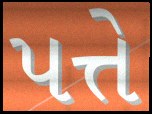
પત્તે